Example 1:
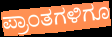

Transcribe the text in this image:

ಪ್ರಾಂತಗಳಿಗೂ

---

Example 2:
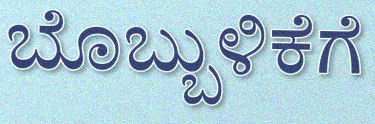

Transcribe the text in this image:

ಬೊಬ್ಬುಳಿಕೆಗೆ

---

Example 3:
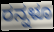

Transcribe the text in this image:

ರನ್ನಳೂ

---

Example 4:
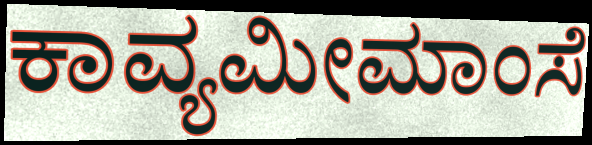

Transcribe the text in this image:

ಕಾವ್ಯಮೀಮಾಂಸೆ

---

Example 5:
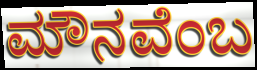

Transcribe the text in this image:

ಮೌನವೆಂಬ